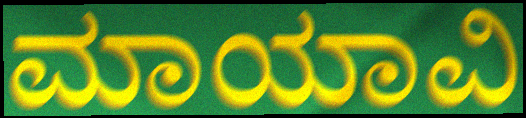
ಮಾಯಾವಿ